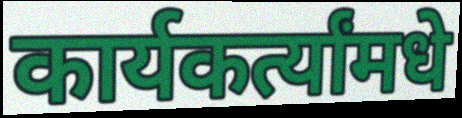
कार्यकर्त्यांमधे